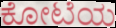
ಕೋಟೆಯ